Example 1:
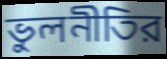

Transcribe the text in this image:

ভুলনীতির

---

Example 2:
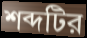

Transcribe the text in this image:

শব্দটির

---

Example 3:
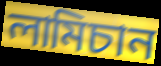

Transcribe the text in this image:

লামিচান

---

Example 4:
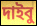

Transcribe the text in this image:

দাইবু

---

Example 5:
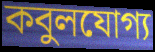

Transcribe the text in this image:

কবুলযোগ্য